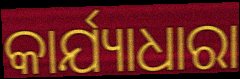
କାର୍ଯ୍ୟାଧାରା